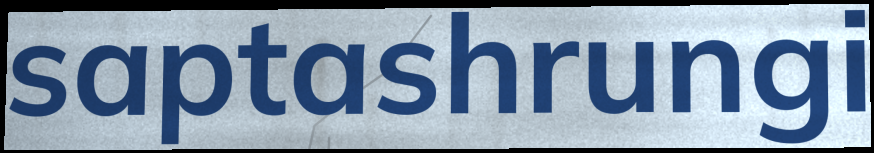
saptashrungi